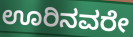
ಊರಿನವರೇ